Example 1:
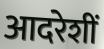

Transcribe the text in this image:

आदरेशीं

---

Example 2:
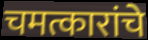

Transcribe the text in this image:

चमत्कारांचे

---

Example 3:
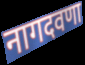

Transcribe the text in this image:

नागदवणा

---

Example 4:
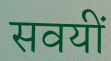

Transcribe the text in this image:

सवयीं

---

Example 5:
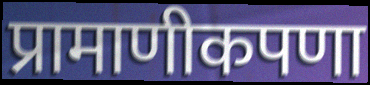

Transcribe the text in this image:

प्रामाणीकपणा